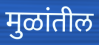
मुळांतील